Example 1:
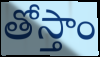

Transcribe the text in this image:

తోస్తాం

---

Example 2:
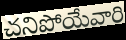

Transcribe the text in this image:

చనిపోయేవారి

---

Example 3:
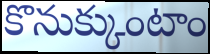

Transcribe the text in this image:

కొనుక్కుంటాం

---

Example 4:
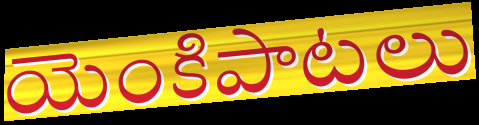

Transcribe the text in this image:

యెంకిపాటలు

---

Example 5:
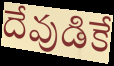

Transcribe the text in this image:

దేవుడికే